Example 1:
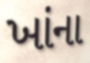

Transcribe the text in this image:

ખાંના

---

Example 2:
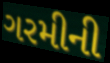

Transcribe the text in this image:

ગરમીની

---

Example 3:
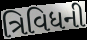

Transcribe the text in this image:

ત્રિવિધની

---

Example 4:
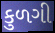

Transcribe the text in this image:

કુળગી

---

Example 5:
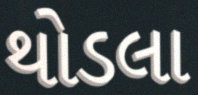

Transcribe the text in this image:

થોડલા